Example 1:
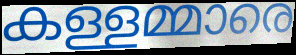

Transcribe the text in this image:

കള്ളമ്മാരെ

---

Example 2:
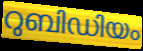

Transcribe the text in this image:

റുബിഡിയം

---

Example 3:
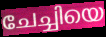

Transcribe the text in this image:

ചേച്ചിയെ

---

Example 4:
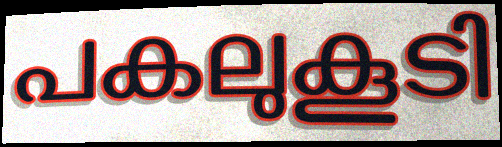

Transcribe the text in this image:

പകലുകൂടി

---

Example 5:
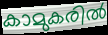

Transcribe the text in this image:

കാമുകരിൽ